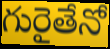
గురైతేనో